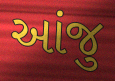
આંજુ